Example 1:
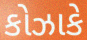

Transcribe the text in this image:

કોઝાકે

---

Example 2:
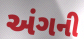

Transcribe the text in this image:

અંગની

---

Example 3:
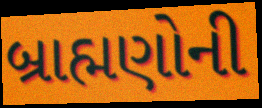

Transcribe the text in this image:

બ્રાહ્મણોની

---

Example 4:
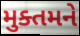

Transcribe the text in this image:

મુક્તમને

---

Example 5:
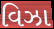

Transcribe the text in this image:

વિઝા